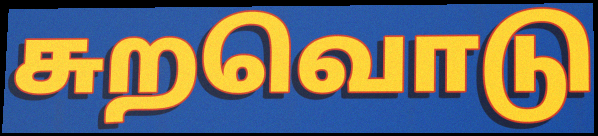
சுறவொடு